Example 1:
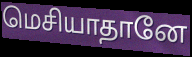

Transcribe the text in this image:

மெசியாதானே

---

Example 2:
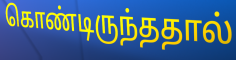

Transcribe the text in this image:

கொண்டிருந்ததால்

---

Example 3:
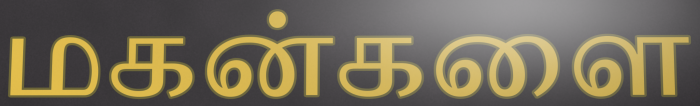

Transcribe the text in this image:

மகன்களை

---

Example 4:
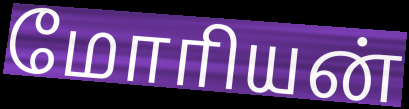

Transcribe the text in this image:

மோரியன்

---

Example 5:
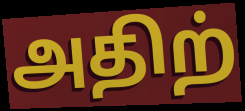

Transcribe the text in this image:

அதிற்